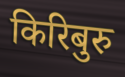
किरिबुरु